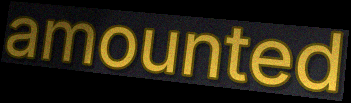
amounted